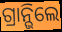
ଗ୍ରାନ୍ଭିଲେ